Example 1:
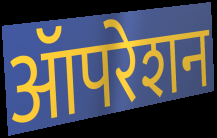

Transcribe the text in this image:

ॲापरेशन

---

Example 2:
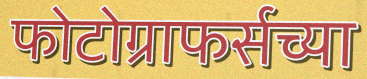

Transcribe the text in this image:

फोटोग्राफर्सच्या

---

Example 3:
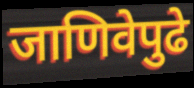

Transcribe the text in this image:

जाणिवेपुढे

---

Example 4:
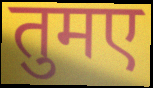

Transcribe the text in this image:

तुमए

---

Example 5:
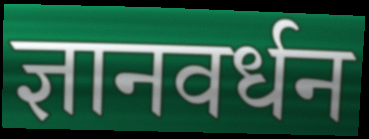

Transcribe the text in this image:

ज्ञानवर्धन